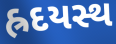
હ્રદયસ્થ